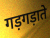
गड़गड़ाते